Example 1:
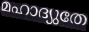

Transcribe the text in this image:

മഹാദ്യുതേ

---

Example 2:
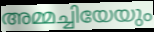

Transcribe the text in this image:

അമ്മച്ചിയേയും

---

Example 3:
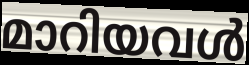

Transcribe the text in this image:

മാറിയവൾ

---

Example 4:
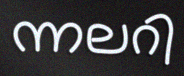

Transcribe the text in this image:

ന്നലറി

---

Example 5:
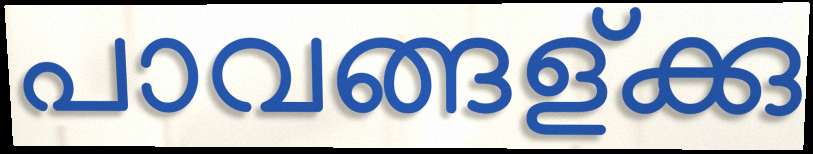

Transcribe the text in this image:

പാവങ്ങള്ക്കു